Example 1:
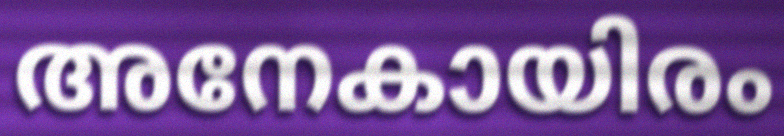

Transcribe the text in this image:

അനേകായിരം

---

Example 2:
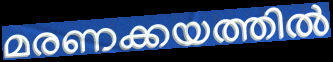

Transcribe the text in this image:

മരണക്കയത്തിൽ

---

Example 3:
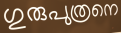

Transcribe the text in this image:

ഗുരുപുത്രനെ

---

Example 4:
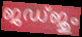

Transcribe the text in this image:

ജഡ്ജും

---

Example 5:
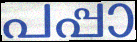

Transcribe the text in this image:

പപ്പാ